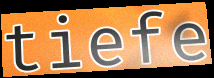
tiefe